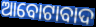
ଆବୋଟାବାଦ